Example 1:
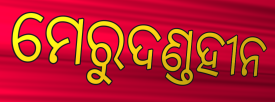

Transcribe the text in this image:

ମେରୁଦଣ୍ଡହୀନ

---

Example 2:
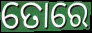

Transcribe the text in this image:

ତୋରେ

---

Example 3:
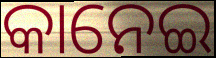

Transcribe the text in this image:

କାନେଇ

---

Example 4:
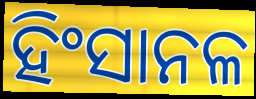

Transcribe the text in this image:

ହିଂସାନଳ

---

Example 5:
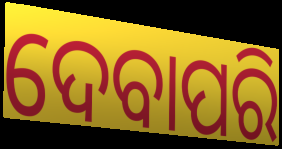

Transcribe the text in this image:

ଦେବାପରି